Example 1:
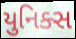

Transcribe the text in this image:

યુનિક્સ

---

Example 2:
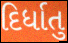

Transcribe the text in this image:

દિર્ધાતુ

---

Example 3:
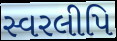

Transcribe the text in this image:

સ્વરલીપિ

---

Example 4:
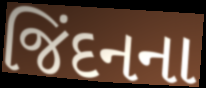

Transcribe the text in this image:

જિંદનના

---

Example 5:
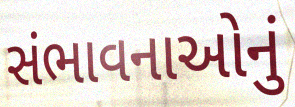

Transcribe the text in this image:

સંભાવનાઓનું